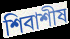
শিবাশীষ